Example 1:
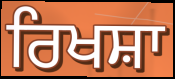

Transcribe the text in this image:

ਰਿਖਸ਼ਾ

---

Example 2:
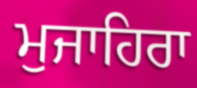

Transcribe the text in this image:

ਮੁਜਾਹਿਰਾ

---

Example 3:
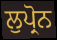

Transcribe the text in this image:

ਲੁਪ੍ਰੋਨ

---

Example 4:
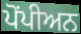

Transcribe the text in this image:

ਪੋਂਪੀਅਨ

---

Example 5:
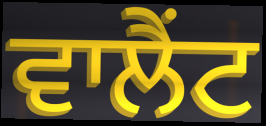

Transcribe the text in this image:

ਵਾਲੈਂਟ